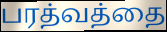
பரத்வத்தை